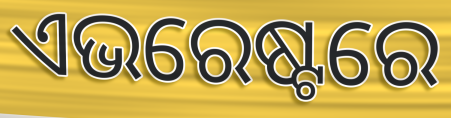
ଏଭରେଷ୍ଟରେ